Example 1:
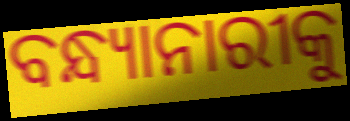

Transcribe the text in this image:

ବନ୍ଧ୍ୟାନାରୀକୁ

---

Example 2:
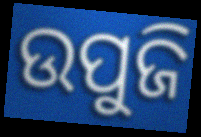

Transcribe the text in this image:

ଉପୁଜି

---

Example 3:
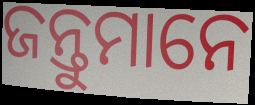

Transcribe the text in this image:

ଜନ୍ତୁମାନେ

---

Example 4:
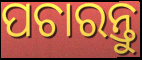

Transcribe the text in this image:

ପଚାରନ୍ତୁ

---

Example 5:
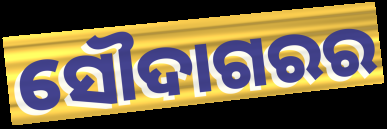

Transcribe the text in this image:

ସୌଦାଗରର